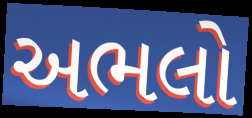
અભલો